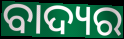
ବାଦ୍ୟର